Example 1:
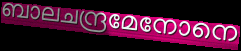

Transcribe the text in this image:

ബാലചന്ദ്രമേനോനെ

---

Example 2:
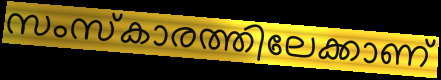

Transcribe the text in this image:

സംസ്കാരത്തിലേക്കാണ്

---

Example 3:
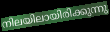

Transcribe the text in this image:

നിലയിലായിരിക്കുന്നു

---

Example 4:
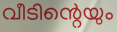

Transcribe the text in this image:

വീടിന്റെയും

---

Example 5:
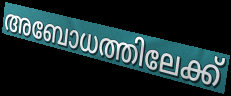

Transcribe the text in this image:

അബോധത്തിലേക്ക്